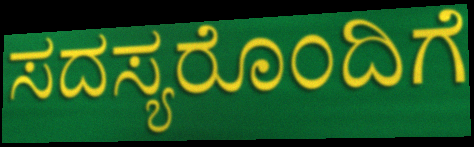
ಸದಸ್ಯರೊಂದಿಗೆ